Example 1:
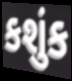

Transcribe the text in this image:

કશુંક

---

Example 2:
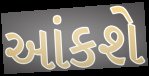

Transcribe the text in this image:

આંકશે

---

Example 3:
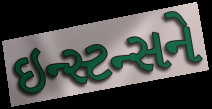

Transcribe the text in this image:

ઇન્સ્ટન્સને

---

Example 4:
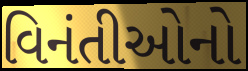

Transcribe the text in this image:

વિનંતીઓનો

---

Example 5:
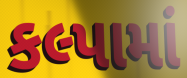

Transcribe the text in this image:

કલ્પામાં